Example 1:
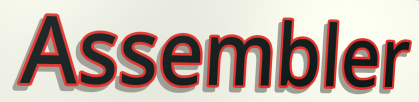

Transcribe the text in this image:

Assembler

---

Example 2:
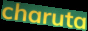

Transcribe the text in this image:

charuta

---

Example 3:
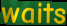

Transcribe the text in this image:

waits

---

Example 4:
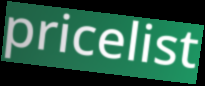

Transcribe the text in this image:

pricelist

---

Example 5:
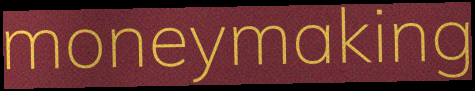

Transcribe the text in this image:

moneymaking